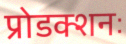
प्रोडक्शनः